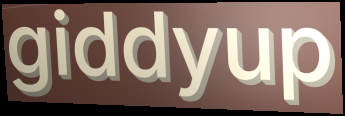
giddyup